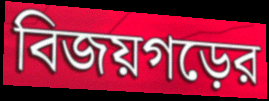
বিজয়গড়ের